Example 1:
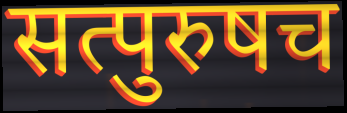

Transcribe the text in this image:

सत्पुरुषच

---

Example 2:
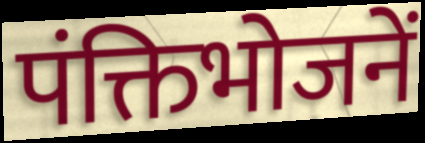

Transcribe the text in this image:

पंक्तिभोजनें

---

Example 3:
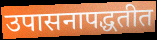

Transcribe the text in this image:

उपासनापद्धतीत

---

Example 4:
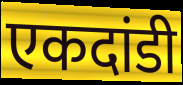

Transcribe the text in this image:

एकदांडी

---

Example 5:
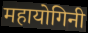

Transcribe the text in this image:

महायोगिनी